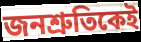
জনশ্রুতিকেই